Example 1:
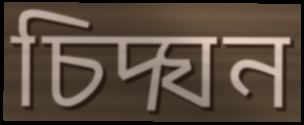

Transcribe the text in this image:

চিদ্ঘন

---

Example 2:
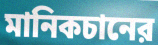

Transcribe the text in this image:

মানিকচানের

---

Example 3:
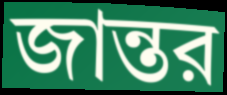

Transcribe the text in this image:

জান্তর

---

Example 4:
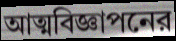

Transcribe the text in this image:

আত্মবিজ্ঞাপনের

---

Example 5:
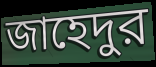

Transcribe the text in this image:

জাহেদুর